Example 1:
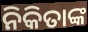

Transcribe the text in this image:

ନିକିତାଙ୍କ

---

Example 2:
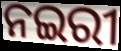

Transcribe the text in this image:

ନଇରୀ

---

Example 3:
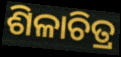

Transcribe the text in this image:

ଶିଳାଚିତ୍ର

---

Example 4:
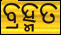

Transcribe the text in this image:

ବ୍ରହ୍ମତ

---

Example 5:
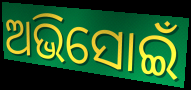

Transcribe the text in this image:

ଅଭିସୋଇଁ